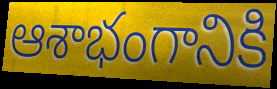
ఆశాభంగానికి